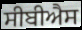
ਸੀਬੀਐਸ